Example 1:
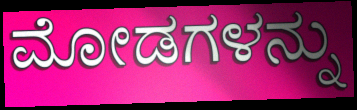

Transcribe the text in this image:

ಮೋಡಗಳನ್ನು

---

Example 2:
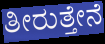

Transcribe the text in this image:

ತೀರುತ್ತೇನೆ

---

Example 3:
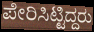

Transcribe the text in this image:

ಪೇರಿಸಿಟ್ಟಿದ್ದರು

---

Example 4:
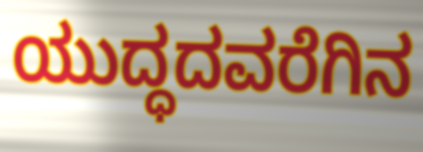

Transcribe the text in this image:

ಯುದ್ಧದವರೆಗಿನ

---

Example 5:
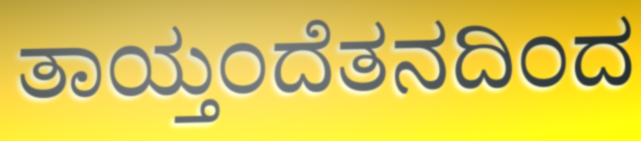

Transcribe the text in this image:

ತಾಯ್ತಂದೆತನದಿಂದ